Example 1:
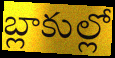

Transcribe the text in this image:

బ్లాకుల్లో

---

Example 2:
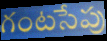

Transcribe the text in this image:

గంటసేపు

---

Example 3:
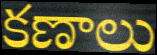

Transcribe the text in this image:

కణాలు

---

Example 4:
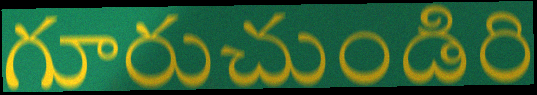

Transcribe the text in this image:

గూరుచుండిరి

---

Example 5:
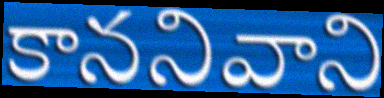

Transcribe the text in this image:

కాననివాని